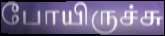
போயிருச்சு